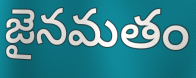
జైనమతం